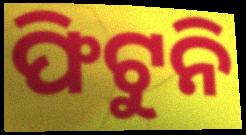
ଫିଟୁନି